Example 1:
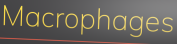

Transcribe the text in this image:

Macrophages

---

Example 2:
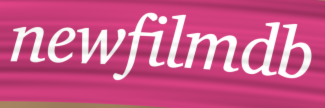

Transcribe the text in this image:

newfilmdb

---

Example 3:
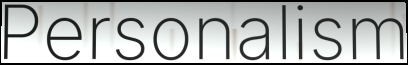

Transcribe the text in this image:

Personalism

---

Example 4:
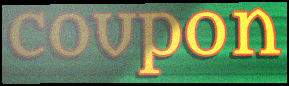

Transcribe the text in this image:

coupon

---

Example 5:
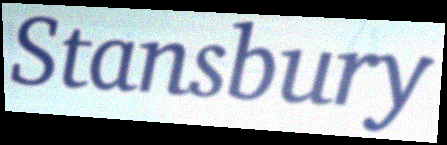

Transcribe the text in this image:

Stansbury